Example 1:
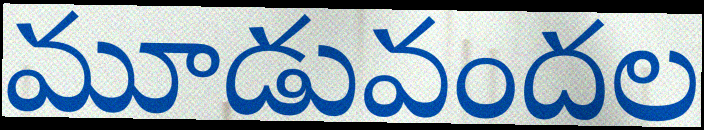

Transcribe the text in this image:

మూడువందల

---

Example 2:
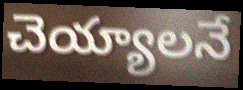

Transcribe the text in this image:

చెయ్యాలనే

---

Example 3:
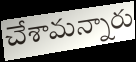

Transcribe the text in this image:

చేశామన్నారు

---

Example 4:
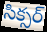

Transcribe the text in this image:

సిక్సర్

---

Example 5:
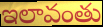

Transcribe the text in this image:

ఇలావంతు